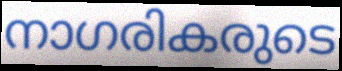
നാഗരികരുടെ